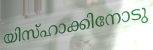
യിസ്ഹാക്കിനോടു